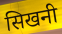
सिखनी